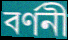
বৰ্ণনী